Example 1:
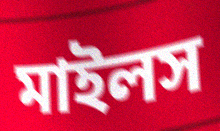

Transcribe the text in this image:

মাইলস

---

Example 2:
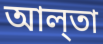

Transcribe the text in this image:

আল্‌তা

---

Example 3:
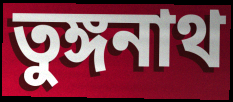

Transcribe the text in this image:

তুঙ্গনাথ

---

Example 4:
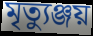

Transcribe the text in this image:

মৃত্যুঞ্জয়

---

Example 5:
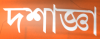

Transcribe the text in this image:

দশাজ্ঞা